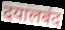
दयालबंद